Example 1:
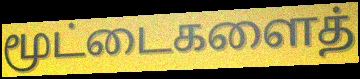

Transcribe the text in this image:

மூட்டைகளைத்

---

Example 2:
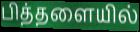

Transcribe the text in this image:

பித்தளையில்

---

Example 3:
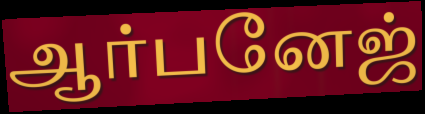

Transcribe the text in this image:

ஆர்பனேஜ்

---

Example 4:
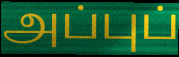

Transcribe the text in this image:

அப்புப்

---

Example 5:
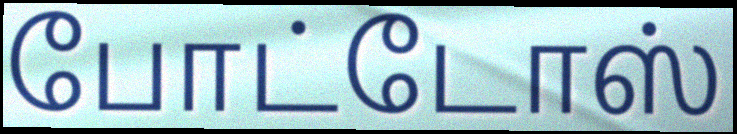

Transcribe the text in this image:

போட்டோஸ்